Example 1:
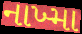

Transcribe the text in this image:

નાખ્મા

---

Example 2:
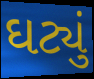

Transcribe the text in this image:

ઘટ્યું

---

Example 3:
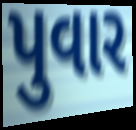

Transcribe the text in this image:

પુવાર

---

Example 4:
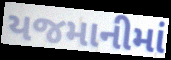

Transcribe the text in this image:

યજમાનીમાં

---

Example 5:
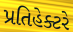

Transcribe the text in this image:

પ્રતિહેક્ટરે